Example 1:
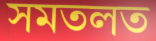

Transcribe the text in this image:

সমতলত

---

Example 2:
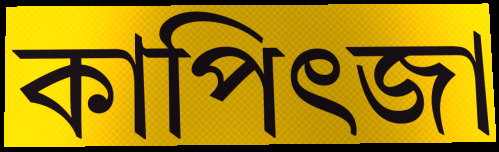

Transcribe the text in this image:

কাপিৎজা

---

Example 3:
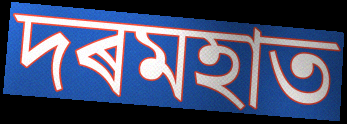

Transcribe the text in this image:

দৰমহাত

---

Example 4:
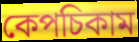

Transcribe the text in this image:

কেপচিকাম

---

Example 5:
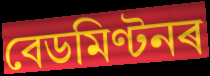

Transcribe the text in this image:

বেডমিণ্টনৰ